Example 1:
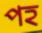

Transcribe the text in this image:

পহ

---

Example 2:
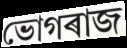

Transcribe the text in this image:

ভোগৰাজ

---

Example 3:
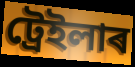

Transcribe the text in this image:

ট্ৰেইলাৰ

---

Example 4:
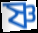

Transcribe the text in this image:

ষ্ণ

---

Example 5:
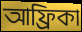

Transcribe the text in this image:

আফ্ৰিকা